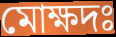
মোক্ষদঃ